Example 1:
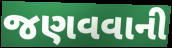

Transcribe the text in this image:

જણવવાની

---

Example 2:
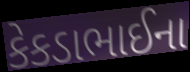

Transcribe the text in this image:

કેકડાભાઈના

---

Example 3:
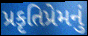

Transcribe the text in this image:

પ્રકૃતિપ્રેમનું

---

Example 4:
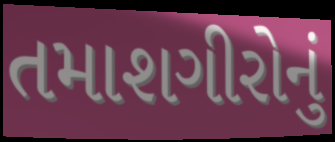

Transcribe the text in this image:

તમાશગીરોનું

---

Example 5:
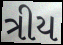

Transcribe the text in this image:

ત્રીય